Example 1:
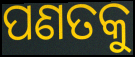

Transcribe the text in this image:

ପଣତକୁ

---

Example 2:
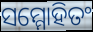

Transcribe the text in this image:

ସମ୍ମୋହିତଂ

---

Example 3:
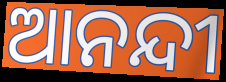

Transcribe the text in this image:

ଆନନ୍ଦୀ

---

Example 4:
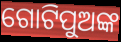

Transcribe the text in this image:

ଗୋଟିପୁଅଙ୍କ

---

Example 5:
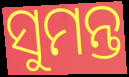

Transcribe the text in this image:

ସୁମନ୍ତ